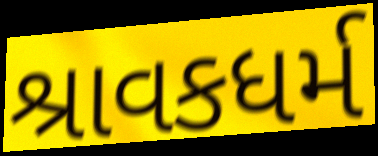
શ્રાવકધર્મ